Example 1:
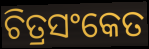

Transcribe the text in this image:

ଚିତ୍ରସଂକେତ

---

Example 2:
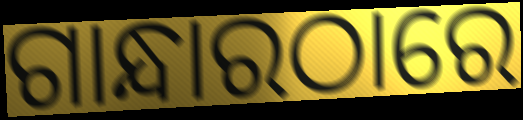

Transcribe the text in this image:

ଗାନ୍ଧାରଠାରେ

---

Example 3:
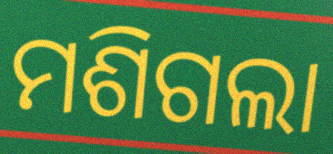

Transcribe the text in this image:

ମଶିଗଲା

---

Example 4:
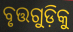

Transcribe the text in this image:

ବୃତ୍ତଗୁଡ଼ିକୁ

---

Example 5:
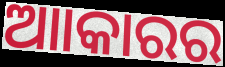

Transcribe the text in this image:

ଆାକାରର